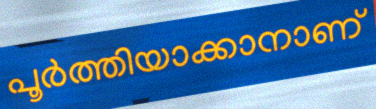
പൂർത്തിയാക്കാനാണ്